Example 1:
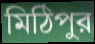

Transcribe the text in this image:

মিঠিপুর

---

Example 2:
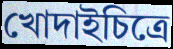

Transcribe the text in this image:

খোদাইচিত্রে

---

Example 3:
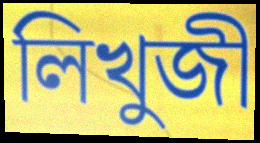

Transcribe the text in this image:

লিখুজী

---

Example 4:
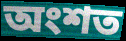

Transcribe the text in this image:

অংশত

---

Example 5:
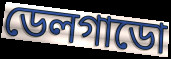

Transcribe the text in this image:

ডেলগাডো